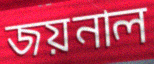
জয়নাল